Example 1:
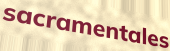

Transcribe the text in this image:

sacramentales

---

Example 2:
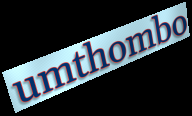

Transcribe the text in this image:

umthombo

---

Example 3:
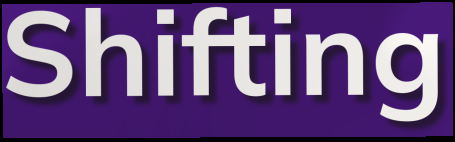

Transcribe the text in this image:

Shifting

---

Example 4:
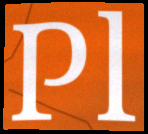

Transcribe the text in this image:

Pl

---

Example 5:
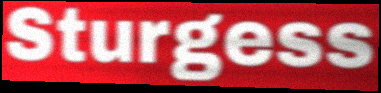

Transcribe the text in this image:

Sturgess